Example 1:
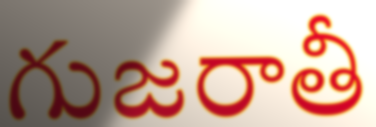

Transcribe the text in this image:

గుజరాతీ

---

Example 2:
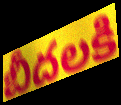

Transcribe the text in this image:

బీదలకి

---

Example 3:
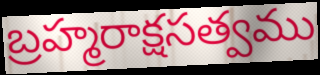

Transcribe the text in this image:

బ్రహ్మరాక్షసత్వము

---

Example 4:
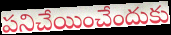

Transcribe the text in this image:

పనిచేయించేందుకు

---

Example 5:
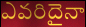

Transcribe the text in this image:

ఎవరిదైనా